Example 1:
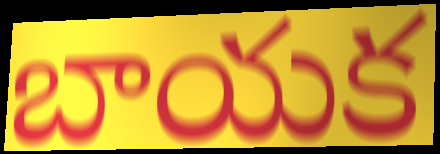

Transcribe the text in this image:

బాయక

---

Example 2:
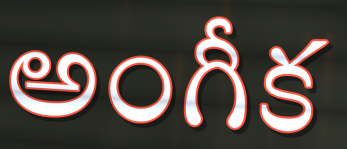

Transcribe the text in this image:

అంగీక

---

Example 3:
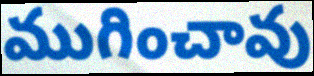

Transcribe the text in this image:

ముగించావు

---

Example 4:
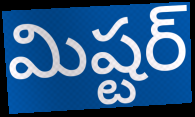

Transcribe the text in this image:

మిష్టర్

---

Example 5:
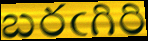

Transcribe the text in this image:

బరఁగిరి